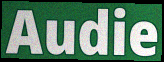
Audie